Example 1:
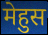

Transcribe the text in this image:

मेहुस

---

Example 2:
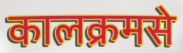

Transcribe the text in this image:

कालक्रमसे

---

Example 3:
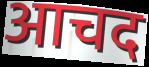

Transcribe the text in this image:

आचद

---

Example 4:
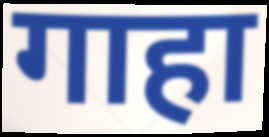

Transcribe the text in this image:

गाहा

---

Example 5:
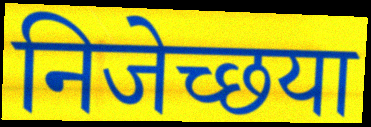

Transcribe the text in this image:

निजेच्छया